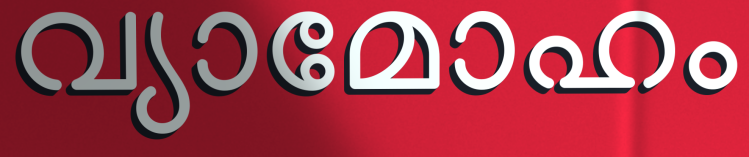
വ്യാമോഹം